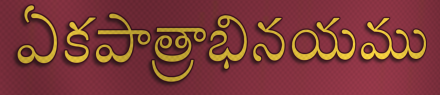
ఏకపాత్రాభినయము